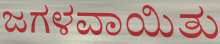
ಜಗಳವಾಯಿತು